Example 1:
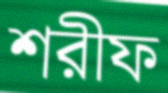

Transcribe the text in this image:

শরীফ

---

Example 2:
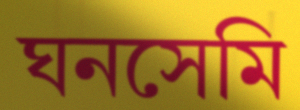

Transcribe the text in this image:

ঘনসেমি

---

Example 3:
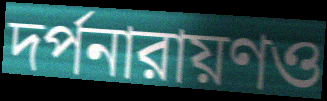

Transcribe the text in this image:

দর্পনারায়ণও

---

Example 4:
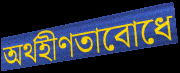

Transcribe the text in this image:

অর্থহীণতাবোধে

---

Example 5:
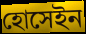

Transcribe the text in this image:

হোসেইন